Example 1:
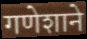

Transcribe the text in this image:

गणेशाने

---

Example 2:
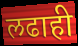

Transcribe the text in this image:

लढाही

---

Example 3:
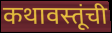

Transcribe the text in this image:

कथावस्तूंची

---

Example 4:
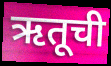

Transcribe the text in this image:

ऋतूची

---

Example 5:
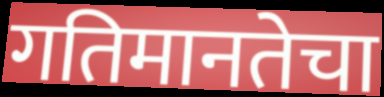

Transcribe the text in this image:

गतिमानतेचा